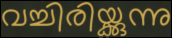
വച്ചിരിയ്ക്കുന്നു